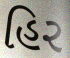
હિર